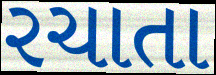
રચાતા